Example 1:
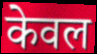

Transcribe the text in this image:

केवल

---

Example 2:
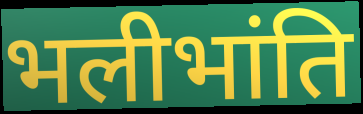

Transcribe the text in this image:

भलीभांति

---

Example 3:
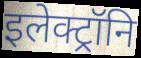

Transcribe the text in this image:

इलेक्ट्रॉनि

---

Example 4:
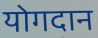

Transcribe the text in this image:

योगदान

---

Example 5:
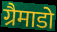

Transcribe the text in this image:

ग्रैमाडो